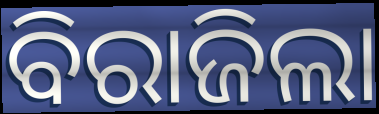
ବିରାଜିଲା